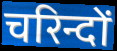
चरिन्दों